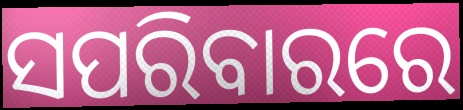
ସପରିବାରରେ